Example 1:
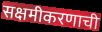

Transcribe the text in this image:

सक्षमीकरणाची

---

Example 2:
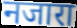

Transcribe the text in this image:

नजारा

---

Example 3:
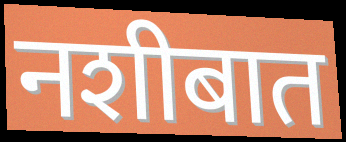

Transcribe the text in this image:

नशीबात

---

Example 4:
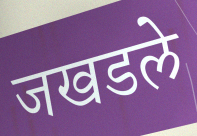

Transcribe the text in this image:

जखडले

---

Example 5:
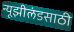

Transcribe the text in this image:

न्यूझीलंडसाठी